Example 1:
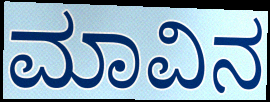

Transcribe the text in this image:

ಮಾವಿನ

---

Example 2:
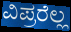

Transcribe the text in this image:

ವಿಪ್ರರೆಲ್ಲ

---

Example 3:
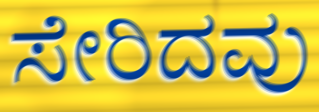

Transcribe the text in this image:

ಸೇರಿದವು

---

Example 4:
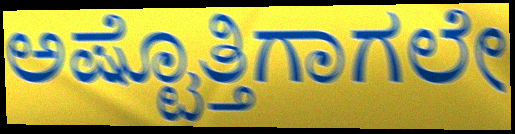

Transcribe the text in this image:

ಅಷ್ಟೊತ್ತಿಗಾಗಲೇ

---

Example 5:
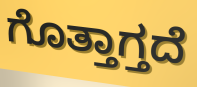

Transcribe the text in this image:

ಗೊತ್ತಾಗ್ತದೆ